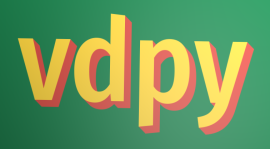
vdpy